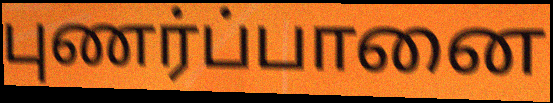
புணர்ப்பானை